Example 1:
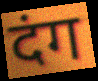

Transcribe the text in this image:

दंग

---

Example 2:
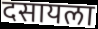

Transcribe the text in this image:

दसायला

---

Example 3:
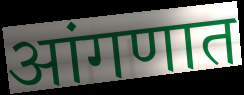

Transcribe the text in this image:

आंगणात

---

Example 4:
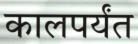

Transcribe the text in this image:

कालपर्यंत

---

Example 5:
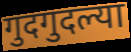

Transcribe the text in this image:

गुदगुदल्या